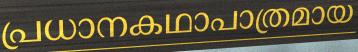
പ്രധാനകഥാപാത്രമായ